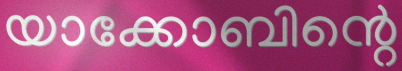
യാക്കോബിന്റെ